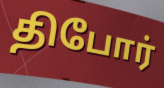
திபோர்